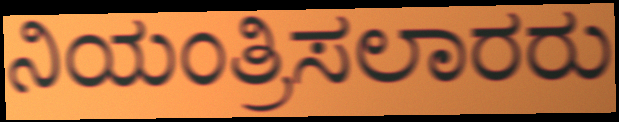
ನಿಯಂತ್ರಿಸಲಾರರು